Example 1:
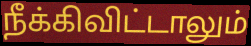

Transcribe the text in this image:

நீக்கிவிட்டாலும்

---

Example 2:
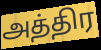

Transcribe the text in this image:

அத்திர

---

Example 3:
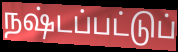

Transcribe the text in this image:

நஷ்டப்பட்டுப்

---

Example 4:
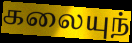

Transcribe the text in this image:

கலையுந்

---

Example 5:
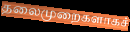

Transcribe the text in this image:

தலைமுறைகளாகச்